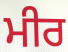
ਮੀਰ